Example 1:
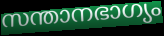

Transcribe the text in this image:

സന്താനഭാഗ്യം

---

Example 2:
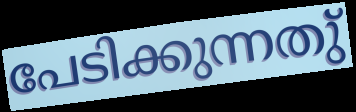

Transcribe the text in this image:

പേടിക്കുന്നതു്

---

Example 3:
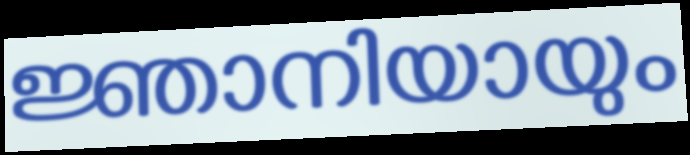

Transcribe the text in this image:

ജ്ഞാനിയായും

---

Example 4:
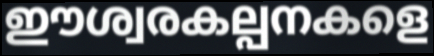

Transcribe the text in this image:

ഈശ്വരകല്പനകളെ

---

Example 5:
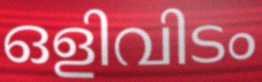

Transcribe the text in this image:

ഒളിവിടം